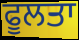
ਫੂਲਤਾ